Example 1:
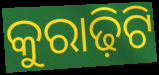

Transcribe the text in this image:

କୁରାଢ଼ିଟି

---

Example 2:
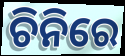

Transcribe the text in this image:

ଚିନିରେ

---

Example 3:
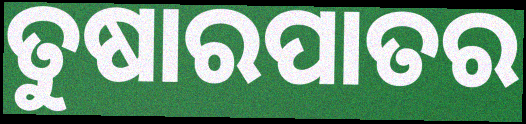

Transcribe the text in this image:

ତୁଷାରପାତର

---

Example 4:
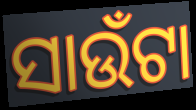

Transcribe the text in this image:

ସାଉଁଟା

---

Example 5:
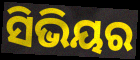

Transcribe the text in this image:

ସିଭିୟର